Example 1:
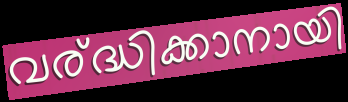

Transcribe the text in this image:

വര്ദ്ധിക്കാനായി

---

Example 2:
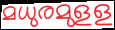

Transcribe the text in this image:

മധുരമുളള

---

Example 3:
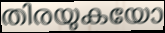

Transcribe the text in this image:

തിരയുകയോ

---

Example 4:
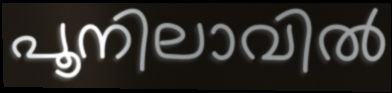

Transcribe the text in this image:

പൂനിലാവിൽ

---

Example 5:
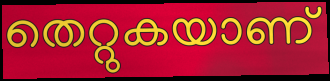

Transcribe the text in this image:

തെറ്റുകയാണ്